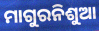
ମାଗୁରନିଶୁଆ